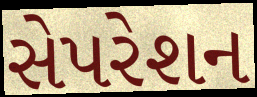
સેપરેશન